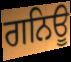
ਗਨਿਊ